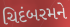
ચિદંબરમને